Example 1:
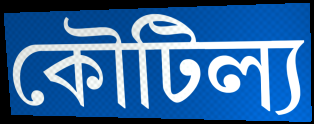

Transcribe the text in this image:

কৌটিল্য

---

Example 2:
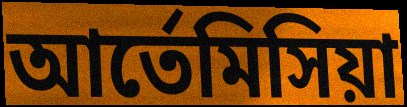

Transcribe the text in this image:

আর্তেমিসিয়া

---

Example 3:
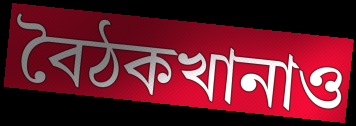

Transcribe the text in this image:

বৈঠকখানাও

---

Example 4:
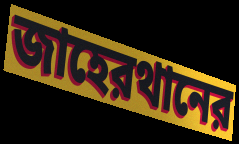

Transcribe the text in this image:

জাহেরথানের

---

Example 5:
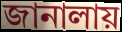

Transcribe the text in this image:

জানালায়